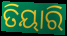
ତିୟାରି